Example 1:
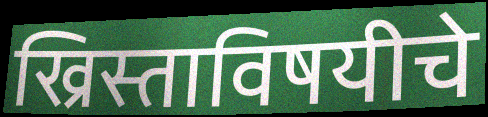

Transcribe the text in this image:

ख्रिस्ताविषयीचे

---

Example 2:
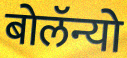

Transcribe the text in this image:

बोलॅन्यो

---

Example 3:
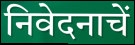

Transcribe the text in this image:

निवेदनाचें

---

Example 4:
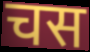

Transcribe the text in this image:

चस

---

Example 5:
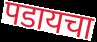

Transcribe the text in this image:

पडायचा